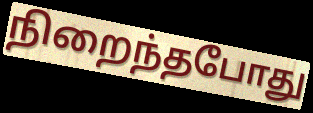
நிறைந்தபோது